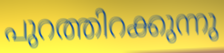
പുറത്തിറക്കുന്നു